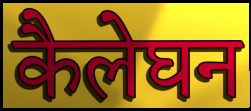
कैलेघन